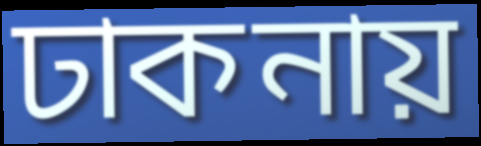
ঢাকনায়